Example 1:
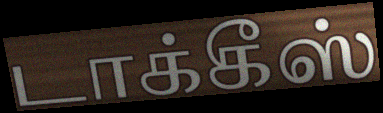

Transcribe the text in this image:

டாக்கீஸ்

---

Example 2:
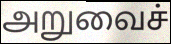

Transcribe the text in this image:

அறுவைச்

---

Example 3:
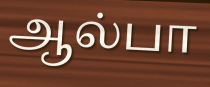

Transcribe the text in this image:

ஆல்பா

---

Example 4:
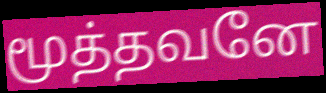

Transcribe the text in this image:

மூத்தவனே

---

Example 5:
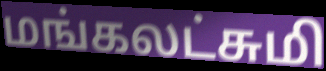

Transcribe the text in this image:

மங்கலட்சுமி